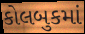
કોલબુકમાં